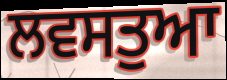
ਲਵਸਤੁਆ